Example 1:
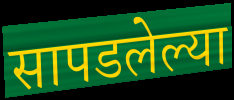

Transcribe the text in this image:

सापडलेल्या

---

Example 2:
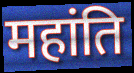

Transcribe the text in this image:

महांति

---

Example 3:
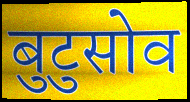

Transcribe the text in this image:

बुटुसोव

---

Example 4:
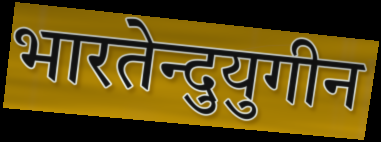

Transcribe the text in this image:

भारतेन्दुयुगीन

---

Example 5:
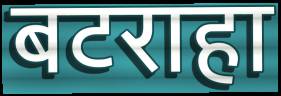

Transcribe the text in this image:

बटराहा